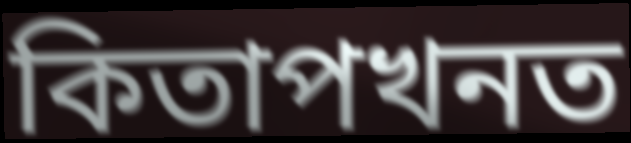
কিতাপখনত